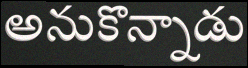
అనుకొన్నాడు